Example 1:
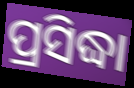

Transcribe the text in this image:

ପ୍ରସିଦ୍ଧା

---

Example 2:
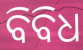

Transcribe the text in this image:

ବିବିଧ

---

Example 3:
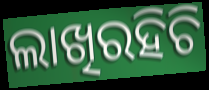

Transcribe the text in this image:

ଲାଖିରହିଚି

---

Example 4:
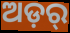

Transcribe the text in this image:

ଅଡ଼ର୍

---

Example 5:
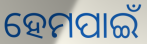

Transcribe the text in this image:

ହେମପାଇଁ